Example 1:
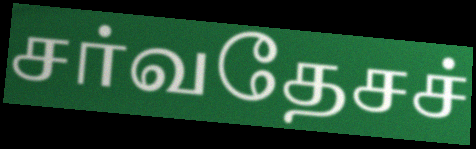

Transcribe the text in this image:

சர்வதேசச்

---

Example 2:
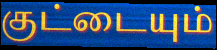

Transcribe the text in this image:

குட்டையும்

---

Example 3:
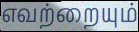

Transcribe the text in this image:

எவற்றையும்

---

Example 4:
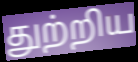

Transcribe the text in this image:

துற்றிய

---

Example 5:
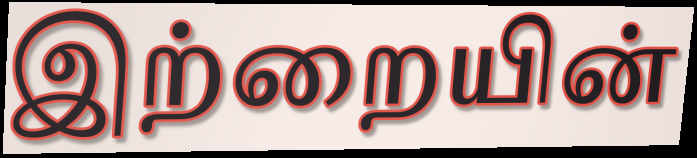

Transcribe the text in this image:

இற்றையின்